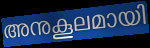
അനുകൂലമായി